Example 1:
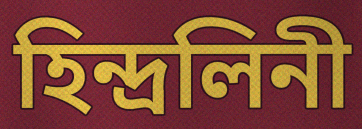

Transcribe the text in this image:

হিন্দ্রলিনী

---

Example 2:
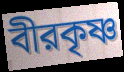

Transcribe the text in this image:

বীরকৃষ্ণ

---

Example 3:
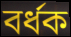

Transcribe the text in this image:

বর্ধক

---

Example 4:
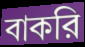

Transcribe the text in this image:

বাকরি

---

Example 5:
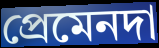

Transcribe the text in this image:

প্রেমেনদা